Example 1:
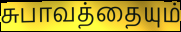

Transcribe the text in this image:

சுபாவத்தையும்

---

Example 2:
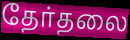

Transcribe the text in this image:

தேர்தலை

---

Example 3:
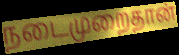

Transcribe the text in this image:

நடைமுறைதான்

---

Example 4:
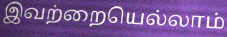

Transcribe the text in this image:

இவற்றையெல்லாம்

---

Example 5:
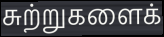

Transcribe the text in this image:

சுற்றுகளைக்